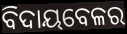
ବିଦାୟବେଳର